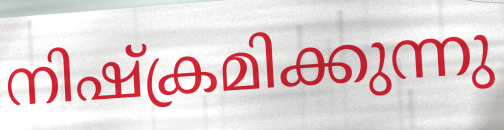
നിഷ്ക്രമിക്കുന്നു